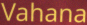
Vahana